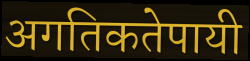
अगतिकतेपायी